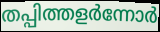
തപ്പിത്തളർന്നോർ